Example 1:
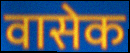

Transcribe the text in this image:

वासेक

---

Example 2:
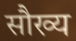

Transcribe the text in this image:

सौख्य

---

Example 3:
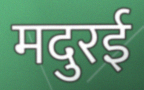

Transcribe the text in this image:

मदुरई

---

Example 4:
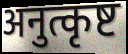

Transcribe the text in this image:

अनुत्कृष्ट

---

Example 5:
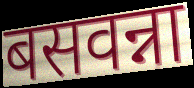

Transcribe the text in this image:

बसवन्ना